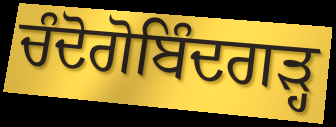
ਚੰਦੋਗੋਬਿੰਦਗੜ੍ਹ